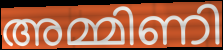
അമ്മിണി